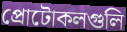
প্রোটোকলগুলি